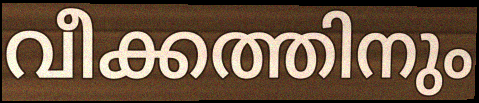
വീക്കത്തിനും